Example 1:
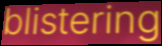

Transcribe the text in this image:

blistering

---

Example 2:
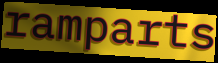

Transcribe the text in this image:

ramparts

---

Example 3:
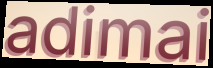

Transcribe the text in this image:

adimai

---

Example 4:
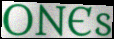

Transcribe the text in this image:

ONEs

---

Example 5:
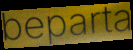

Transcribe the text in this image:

beparta